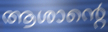
ആശാന്റെ